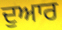
ਦੁਆਰ